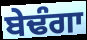
ਬੇਢੰਗਾ